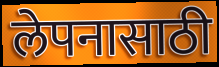
लेपनासाठी